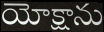
యోక్షాను